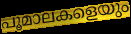
പൂമാലകളെയും